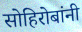
सोहिरोबांनी